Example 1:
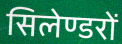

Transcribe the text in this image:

सिलेण्डरों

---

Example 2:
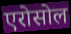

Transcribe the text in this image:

एरोसोल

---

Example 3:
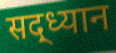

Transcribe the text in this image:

सद्ध्यान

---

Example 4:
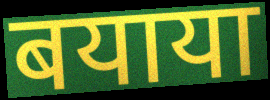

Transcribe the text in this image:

बयाया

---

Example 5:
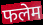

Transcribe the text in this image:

फलेम